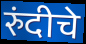
रुंदीचे